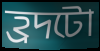
হ্ৰদটো